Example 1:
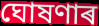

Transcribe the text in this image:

ঘোষণাৰ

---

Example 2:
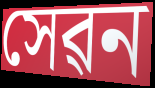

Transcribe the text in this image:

সেৱন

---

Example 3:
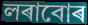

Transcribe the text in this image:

লৰাবোৰ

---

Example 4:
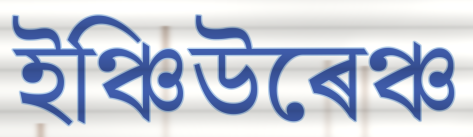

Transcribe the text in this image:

ইঞ্চিউৰেঞ্চ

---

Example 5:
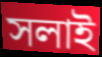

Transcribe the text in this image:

সলাই